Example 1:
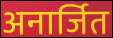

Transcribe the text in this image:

अनार्जित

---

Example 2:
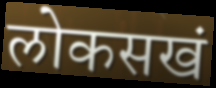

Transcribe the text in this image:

लोकसखं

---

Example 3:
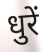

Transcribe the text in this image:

धुरें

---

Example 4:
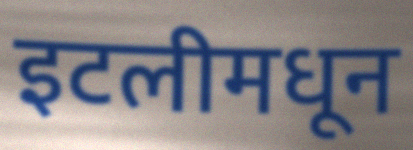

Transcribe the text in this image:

इटलीमधून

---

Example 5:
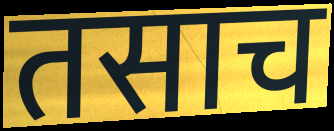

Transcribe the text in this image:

तसाच